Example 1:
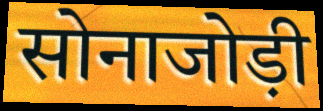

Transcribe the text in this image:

सोनाजोड़ी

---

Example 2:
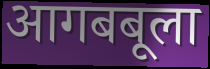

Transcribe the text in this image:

आगबबूला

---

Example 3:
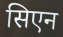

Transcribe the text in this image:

सिएन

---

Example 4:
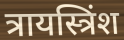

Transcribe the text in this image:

त्रायस्त्रिंश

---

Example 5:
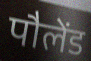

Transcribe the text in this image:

पौलेंड